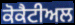
ਕੋਕੈਟੀਅਲ